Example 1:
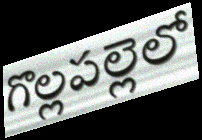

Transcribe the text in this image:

గొల్లపల్లెలో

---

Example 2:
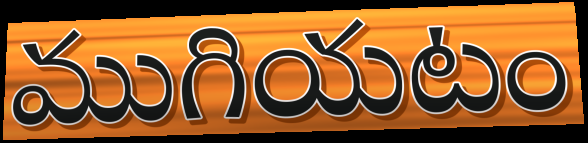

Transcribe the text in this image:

ముగియటం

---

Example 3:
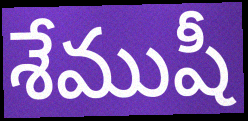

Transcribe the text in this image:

శేముషీ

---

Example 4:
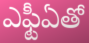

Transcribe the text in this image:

ఎఫ్టీఏతో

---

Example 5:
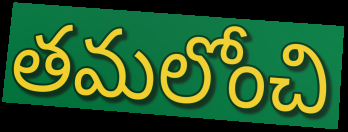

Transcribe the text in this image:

తమలోంచి